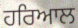
ਹਰਿਆਲ